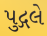
પુદ્ગલે